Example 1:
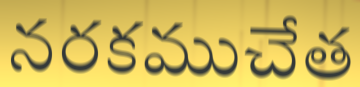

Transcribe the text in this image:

నరకముచేత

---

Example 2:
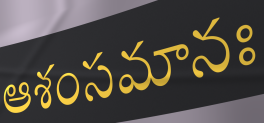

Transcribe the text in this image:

ఆశంసమానః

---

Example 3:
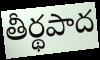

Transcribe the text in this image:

తీర్థపాద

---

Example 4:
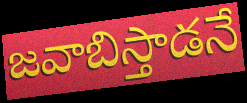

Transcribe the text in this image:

జవాబిస్తాడనే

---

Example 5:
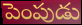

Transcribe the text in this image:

పెంపుడు